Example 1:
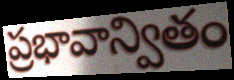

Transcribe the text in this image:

ప్రభావాన్వితం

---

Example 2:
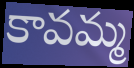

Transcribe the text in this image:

కావమ్మ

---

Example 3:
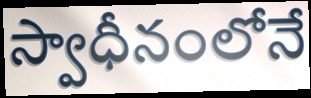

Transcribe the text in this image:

స్వాధీనంలోనే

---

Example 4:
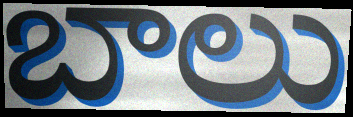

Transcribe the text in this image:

బాలు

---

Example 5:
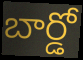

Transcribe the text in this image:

బార్డో